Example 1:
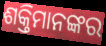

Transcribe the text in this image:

ଶକ୍ତିମାନଙ୍କର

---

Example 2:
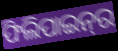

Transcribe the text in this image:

ଫିଲିପାଇନ୍‌ର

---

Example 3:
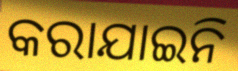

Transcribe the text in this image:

କରାଯାଇନି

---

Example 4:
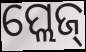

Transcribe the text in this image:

ପ୍ଲେଜ୍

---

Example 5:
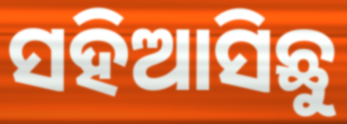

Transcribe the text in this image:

ସହିଆସିଛୁ